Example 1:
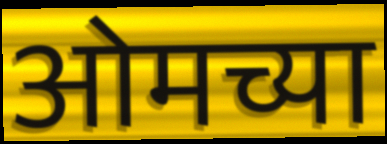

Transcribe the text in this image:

ओमच्या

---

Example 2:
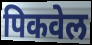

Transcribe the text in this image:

पिकवेल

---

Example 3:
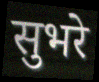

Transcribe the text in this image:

सुभरे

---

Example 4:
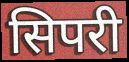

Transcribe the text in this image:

सिपरी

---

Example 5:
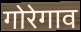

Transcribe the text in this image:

गोरेगाव